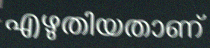
എഴുതിയതാണ്